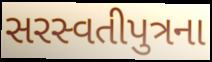
સરસ્વતીપુત્રના